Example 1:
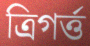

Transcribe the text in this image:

ত্রিগর্ত্ত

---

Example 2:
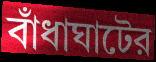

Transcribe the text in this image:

বাঁধাঘাটের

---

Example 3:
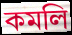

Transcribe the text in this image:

কমলি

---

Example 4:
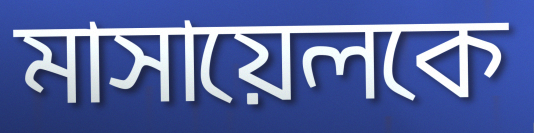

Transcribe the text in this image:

মাসায়েলকে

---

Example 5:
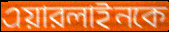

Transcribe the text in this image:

এয়ারলাইনকে